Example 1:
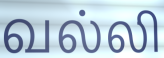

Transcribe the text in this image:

வல்லி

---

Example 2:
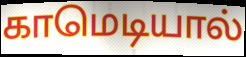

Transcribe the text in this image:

காமெடியால்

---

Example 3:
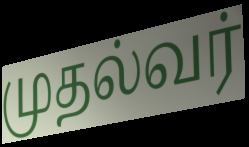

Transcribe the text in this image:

முதல்வர்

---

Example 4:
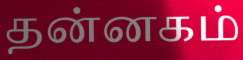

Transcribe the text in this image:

தன்னகம்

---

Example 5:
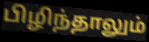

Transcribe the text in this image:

பிழிந்தாலும்